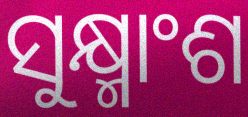
ସୁକ୍ଷ୍ମାଂଶ